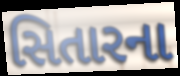
સિતારના